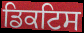
ਡਿਕਟਿਸ